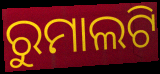
ରୁମାଲଟି